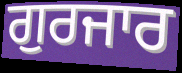
ਗੁਰਜਾਰ